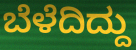
ಬೆಳೆದಿದ್ದು